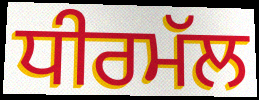
ਧੀਰਮੱਲ